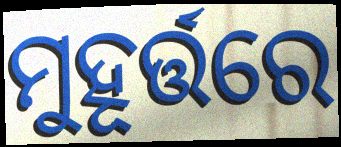
ମୁହୂର୍ତ୍ତରେ